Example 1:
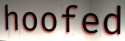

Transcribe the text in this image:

hoofed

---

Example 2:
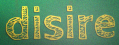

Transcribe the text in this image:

disire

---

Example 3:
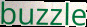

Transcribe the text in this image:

buzzle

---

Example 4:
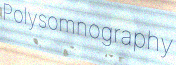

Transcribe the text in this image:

Polysomnography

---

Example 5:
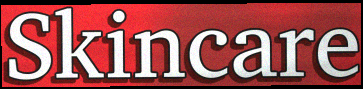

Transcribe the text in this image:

Skincare